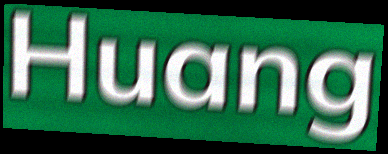
Huang